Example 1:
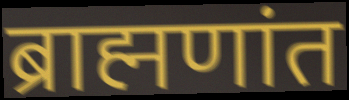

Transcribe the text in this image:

ब्राह्मणांत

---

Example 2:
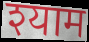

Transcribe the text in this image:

श्याम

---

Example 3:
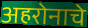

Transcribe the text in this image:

अहरोनाचे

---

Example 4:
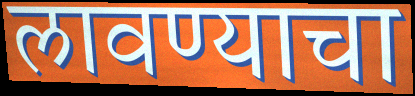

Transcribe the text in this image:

लावण्याचा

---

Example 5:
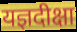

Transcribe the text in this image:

यज्ञदीक्षा